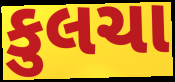
કુલચા